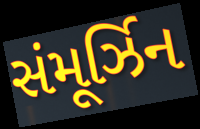
સંમૂર્ઝિન